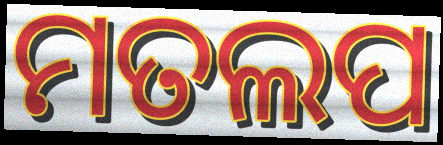
ମତଲପ